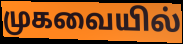
முகவையில்